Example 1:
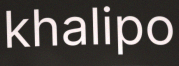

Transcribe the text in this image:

khalipo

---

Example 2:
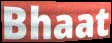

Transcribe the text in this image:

Bhaat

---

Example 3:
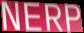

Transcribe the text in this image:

NERP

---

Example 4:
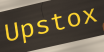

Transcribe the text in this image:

Upstox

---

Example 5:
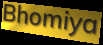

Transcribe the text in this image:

Bhomiya